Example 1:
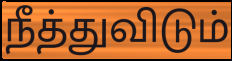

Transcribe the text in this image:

நீத்துவிடும்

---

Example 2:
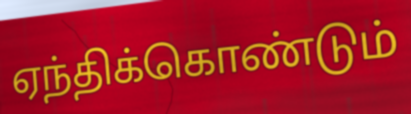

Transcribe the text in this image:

ஏந்திக்கொண்டும்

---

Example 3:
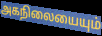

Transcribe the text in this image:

அகநிலையையும்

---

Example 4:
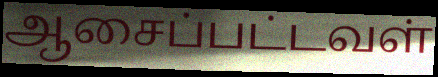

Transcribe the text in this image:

ஆசைப்பட்டவள்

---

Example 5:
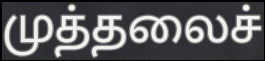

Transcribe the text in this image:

முத்தலைச்